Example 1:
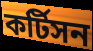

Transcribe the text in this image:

কর্টিসন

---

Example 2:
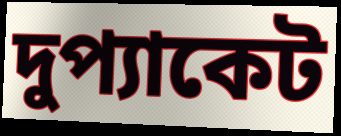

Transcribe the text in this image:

দুপ্যাকেট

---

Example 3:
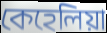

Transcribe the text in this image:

কেহেলিয়া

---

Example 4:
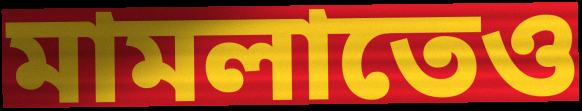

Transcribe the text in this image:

মামলাতেও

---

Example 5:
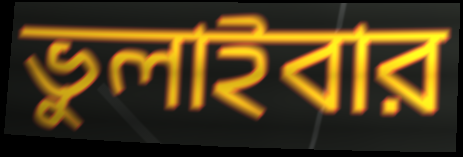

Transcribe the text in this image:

ভুলাইবার